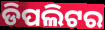
ଡିପଲିଟର